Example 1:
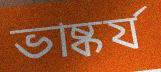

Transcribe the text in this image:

ভাষ্কর্য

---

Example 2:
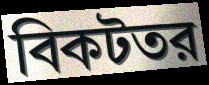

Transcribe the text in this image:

বিকটতর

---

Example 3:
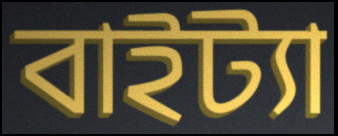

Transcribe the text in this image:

বাইট্যা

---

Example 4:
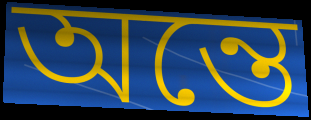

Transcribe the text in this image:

অন্তে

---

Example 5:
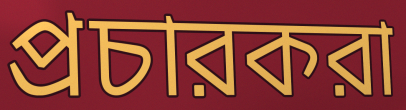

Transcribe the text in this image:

প্রচারকরা